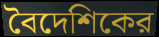
বৈদেশিকের